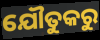
ଯୌତୁକରୁ